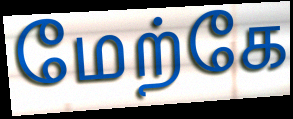
மேற்கே